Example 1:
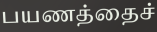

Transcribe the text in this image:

பயணத்தைச்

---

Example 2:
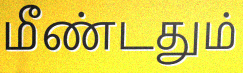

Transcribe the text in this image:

மீண்டதும்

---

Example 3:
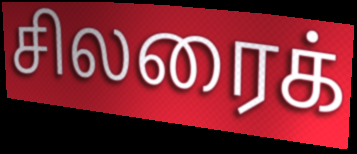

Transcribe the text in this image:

சிலரைக்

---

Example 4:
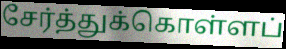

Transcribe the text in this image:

சேர்த்துக்கொள்ளப்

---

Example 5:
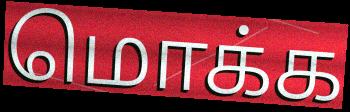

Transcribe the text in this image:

மொக்க